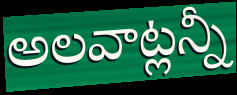
అలవాట్లన్నీ